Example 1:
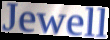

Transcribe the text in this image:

Jewell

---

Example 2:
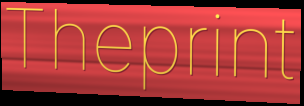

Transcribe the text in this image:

Theprint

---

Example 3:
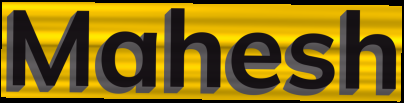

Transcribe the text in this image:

Mahesh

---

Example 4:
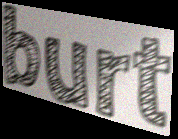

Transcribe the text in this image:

burt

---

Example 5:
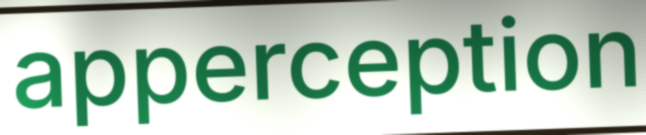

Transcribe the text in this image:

apperception